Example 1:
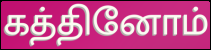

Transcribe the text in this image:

கத்தினோம்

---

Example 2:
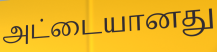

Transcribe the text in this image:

அட்டையானது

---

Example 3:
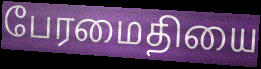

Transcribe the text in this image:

பேரமைதியை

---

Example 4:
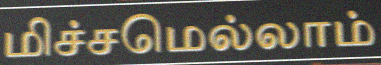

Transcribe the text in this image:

மிச்சமெல்லாம்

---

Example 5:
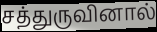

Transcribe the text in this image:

சத்துருவினால்